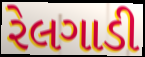
રેલગાડી